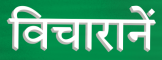
विचारानें